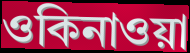
ওকিনাওয়া